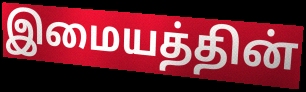
இமையத்தின்